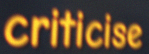
criticise